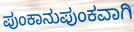
ಪುಂಕಾನುಪುಂಕವಾಗಿ